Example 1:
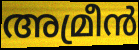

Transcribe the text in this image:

അമ്രീൻ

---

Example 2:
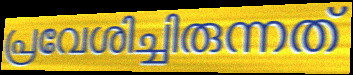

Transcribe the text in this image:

പ്രവേശിച്ചിരുന്നത്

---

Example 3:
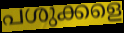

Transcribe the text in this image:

പശുക്കളെ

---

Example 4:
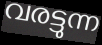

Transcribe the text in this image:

വരട്ടുന്ന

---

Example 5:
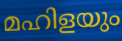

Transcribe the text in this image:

മഹിളയും